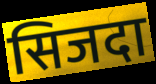
सिजदा